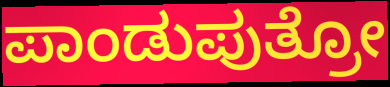
ಪಾಂಡುಪುತ್ರೋ